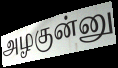
அழகுன்னு